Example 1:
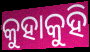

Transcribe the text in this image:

କୁହାକୁହି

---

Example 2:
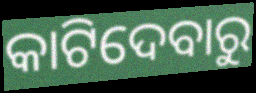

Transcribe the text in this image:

କାଟିଦେବାରୁ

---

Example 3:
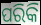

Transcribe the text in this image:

ପରିକି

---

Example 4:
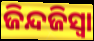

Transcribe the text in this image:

ଜିନ୍ଦଜିସ୍ୱା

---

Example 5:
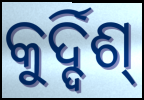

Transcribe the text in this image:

କୁର୍ଦ୍ଦିଶ୍